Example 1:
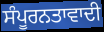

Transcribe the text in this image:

ਸੰਪੂਰਨਤਾਵਾਦੀ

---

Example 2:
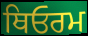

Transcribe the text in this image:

ਥਿਓਰਮ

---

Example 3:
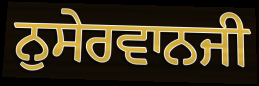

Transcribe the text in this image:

ਨੁਸੇਰਵਾਨਜੀ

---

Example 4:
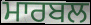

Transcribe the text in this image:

ਮਾਰਬਲ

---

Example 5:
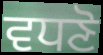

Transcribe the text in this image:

ਵਧਣੋ